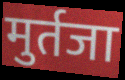
मुर्तजा